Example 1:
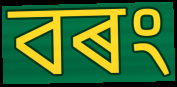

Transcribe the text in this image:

বৰং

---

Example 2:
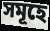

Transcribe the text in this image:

সমূহে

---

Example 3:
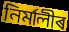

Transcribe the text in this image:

নিৰ্মালীৰ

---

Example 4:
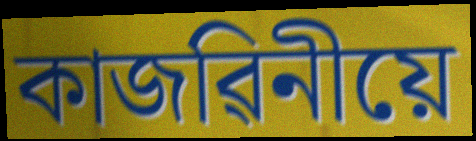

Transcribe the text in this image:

কাজৱিনীয়ে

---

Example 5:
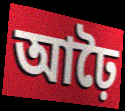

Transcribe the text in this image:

আঢ়ৈ